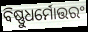
ବିଷ୍ଣୁଧର୍ମୋତ୍ତରଂ